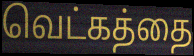
வெட்கத்தை